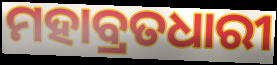
ମହାବ୍ରତଧାରୀ